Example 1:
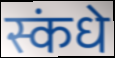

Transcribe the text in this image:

स्कंधे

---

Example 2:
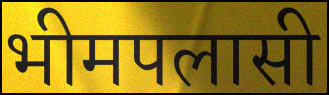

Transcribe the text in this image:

भीमपलासी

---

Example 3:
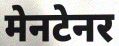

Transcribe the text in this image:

मेनटेनर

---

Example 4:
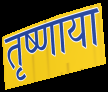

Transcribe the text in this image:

तृष्णाया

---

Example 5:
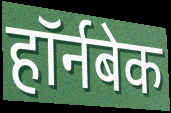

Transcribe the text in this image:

हॉर्नबेक